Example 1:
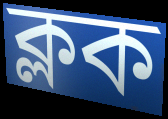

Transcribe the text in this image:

ক্লক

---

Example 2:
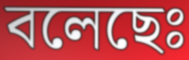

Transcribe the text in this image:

বলেছেঃ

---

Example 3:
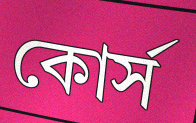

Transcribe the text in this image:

কোর্স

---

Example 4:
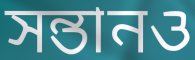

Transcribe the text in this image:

সন্তানও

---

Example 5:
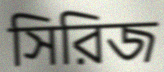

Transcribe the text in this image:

সিরিজ